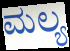
ಮಲ್ಯ